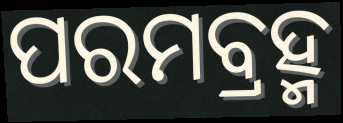
ପରମବ୍ରହ୍ମ